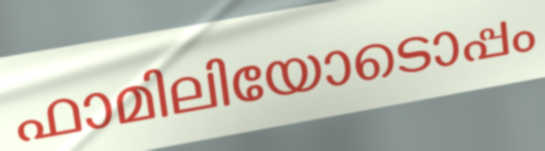
ഫാമിലിയോടൊപ്പം